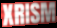
XRISM